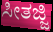
ಸೀತಜ್ಜಿ